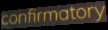
confirmatory